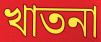
খাতনা